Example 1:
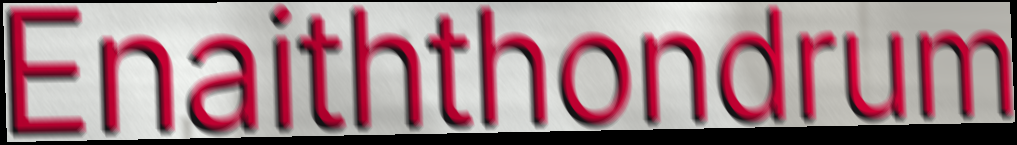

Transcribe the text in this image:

Enaiththondrum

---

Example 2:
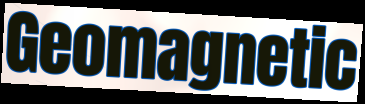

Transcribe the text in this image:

Geomagnetic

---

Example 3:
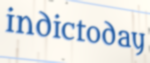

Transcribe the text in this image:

indictoday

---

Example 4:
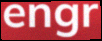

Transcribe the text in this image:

engr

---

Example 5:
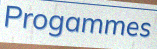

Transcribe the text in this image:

Progammes